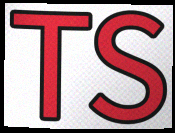
TS